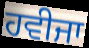
ਹਵੀਜਾ